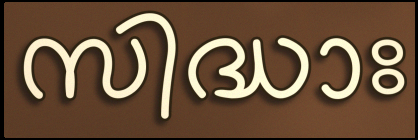
സിദ്ധാഃ